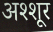
अश्शूर